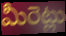
మీరెట్లు